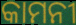
କାମନୀ